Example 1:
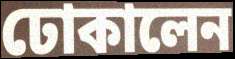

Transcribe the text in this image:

ঢোকালেন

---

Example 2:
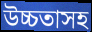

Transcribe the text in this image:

উচ্চতাসহ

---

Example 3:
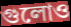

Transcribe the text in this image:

গুলোও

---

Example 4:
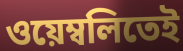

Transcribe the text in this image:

ওয়েম্বলিতেই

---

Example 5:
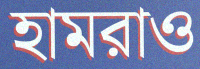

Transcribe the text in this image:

হামরাও